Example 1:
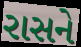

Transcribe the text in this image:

રાસને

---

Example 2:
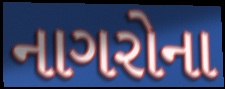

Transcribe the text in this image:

નાગરોના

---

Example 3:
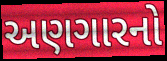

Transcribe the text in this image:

અણગારનો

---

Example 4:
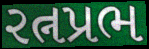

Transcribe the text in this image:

રત્નપ્રભ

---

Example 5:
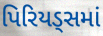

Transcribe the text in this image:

પિરિયડ્સમાં